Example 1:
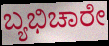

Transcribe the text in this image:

ಬ್ಯಭಿಚಾರೇ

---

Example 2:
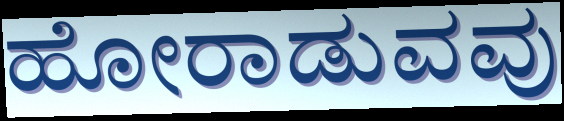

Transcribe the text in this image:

ಹೋರಾಡುವವು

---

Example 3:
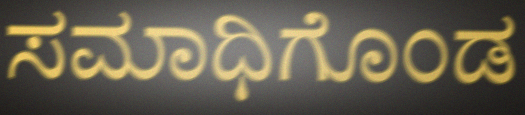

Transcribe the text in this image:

ಸಮಾಧಿಗೊಂಡ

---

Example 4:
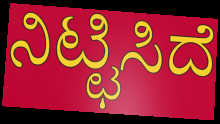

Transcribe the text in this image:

ನಿಟ್ಟಿಸಿದೆ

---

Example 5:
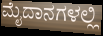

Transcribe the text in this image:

ಮೈದಾನಗಳಲ್ಲಿ